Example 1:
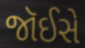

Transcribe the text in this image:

જૉઈસે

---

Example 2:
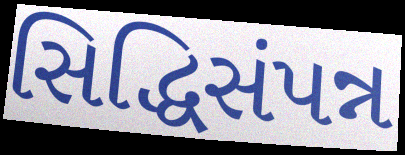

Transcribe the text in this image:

સિદ્ધિસંપન્ન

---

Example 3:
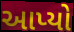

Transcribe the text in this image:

આપ્યો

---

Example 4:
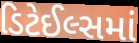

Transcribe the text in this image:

ડિટેઈલ્સમાં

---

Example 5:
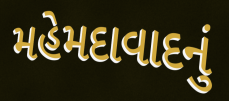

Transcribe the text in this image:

મહેમદાવાદનું